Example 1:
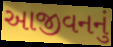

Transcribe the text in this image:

આજીવનનું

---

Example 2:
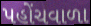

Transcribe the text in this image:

પહોંચવાળા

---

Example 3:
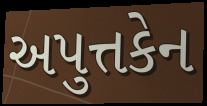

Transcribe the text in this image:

અપુત્તકેન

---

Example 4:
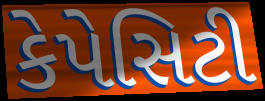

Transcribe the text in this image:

કેપેસિટી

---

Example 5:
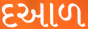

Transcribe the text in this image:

દઆળ